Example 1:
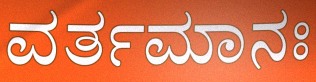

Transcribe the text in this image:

ವರ್ತಮಾನಃ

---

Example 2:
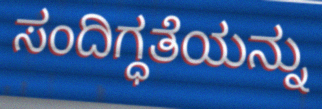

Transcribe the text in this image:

ಸಂದಿಗ್ಧತೆಯನ್ನು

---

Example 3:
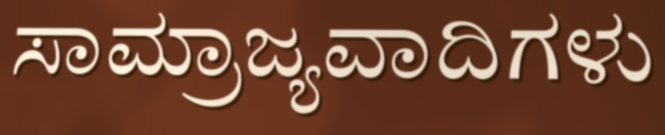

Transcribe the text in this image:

ಸಾಮ್ರಾಜ್ಯವಾದಿಗಳು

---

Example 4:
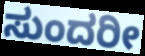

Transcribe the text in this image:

ಸುಂದರೀ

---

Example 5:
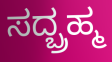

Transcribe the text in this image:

ಸದ್ಬ್ರಹ್ಮ